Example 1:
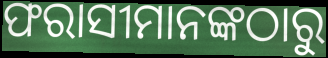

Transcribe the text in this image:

ଫରାସୀମାନଙ୍କଠାରୁ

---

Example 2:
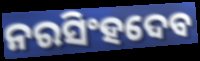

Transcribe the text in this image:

ନରସିଂହଦେବ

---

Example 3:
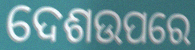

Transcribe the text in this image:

ଦେଶଉପରେ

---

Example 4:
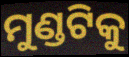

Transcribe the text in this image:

ମୁଣ୍ଡଟିକୁ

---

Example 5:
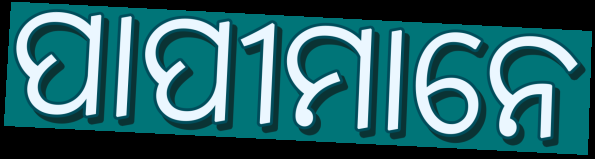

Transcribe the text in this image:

ପାପୀମାନେ